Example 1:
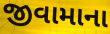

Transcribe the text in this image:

જીવામાના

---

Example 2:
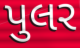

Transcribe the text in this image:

પુલર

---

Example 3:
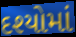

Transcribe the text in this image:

દશ્યોમાં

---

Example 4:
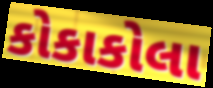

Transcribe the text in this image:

કોકાકોલા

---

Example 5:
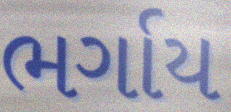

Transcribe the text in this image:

ભર્ગાય